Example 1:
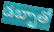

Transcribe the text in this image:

డబ్బాతో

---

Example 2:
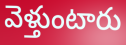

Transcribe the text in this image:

వెళ్తుంటారు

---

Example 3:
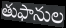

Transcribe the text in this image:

తుఫానుల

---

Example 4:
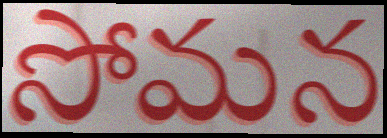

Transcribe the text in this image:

సోమన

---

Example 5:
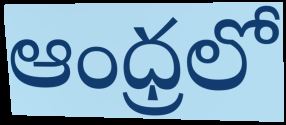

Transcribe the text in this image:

ఆంధ్రలో